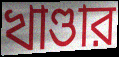
খাণ্ডার